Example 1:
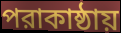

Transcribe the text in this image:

পরাকাষ্ঠায়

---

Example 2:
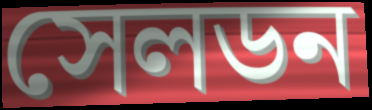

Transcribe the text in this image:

সেলডন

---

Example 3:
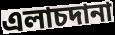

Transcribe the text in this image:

এলাচদানা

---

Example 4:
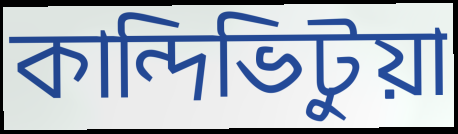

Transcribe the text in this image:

কান্দিভিটুয়া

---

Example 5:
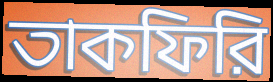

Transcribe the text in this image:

তাকফিরি